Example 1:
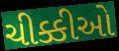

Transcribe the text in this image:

ચીક્કીઓ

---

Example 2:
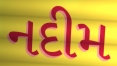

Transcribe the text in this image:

નદીમ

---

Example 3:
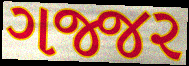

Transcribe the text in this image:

ગજ્જર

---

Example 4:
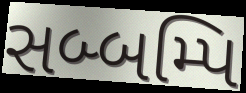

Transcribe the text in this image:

સબ્બમ્પિ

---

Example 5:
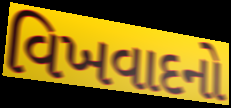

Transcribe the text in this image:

વિખવાદનો